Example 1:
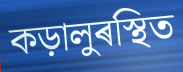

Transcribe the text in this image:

কড়ালুৰস্থিত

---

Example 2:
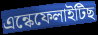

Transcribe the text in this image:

এন্কেফেলাইটিছ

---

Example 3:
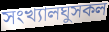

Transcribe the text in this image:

সংখ্যালঘুসকল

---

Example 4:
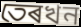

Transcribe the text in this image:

তেৰখন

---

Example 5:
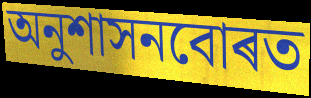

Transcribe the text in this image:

অনুশাসনবোৰত